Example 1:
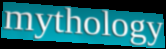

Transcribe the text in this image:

mythology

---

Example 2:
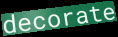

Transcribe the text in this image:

decorate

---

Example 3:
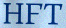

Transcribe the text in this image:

HFT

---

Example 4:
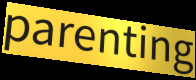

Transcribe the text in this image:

parenting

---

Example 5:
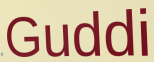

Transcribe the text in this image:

Guddi